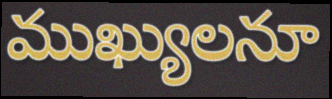
ముఖ్యులనూ